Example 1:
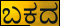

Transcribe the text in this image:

ಬಕದ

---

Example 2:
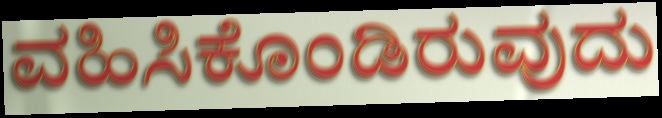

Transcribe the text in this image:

ವಹಿಸಿಕೊಂಡಿರುವುದು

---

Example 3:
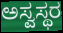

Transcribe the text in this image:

ಅಸ್ವಸ್ಥರ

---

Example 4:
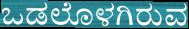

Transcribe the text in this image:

ಒಡಲೊಳಗಿರುವ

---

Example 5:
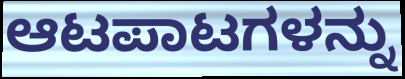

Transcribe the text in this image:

ಆಟಪಾಟಗಳನ್ನು